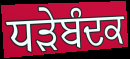
ਧੜੇਬੰਦਕ